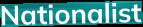
Nationalist